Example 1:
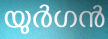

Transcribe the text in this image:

യുർഗൻ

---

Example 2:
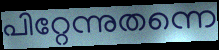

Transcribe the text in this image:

പിറ്റേന്നുതന്നെ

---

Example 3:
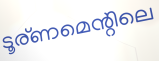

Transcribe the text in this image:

ടൂര്ണമെന്റിലെ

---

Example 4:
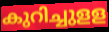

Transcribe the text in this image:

കുറിച്ചുളള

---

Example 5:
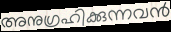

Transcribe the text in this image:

അനുഗ്രഹിക്കുന്നവൻ